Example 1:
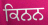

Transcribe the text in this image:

ਕਿਨਨ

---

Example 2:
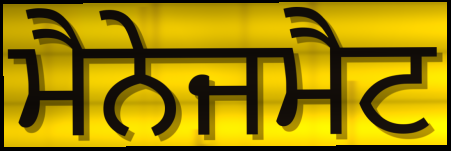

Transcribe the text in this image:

ਮੈਨੇਜਮੈਟ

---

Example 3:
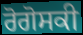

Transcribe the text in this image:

ਰੋਗੋਸਕੀ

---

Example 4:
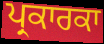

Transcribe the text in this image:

ਪ੍ਰਕਾਰਕਾ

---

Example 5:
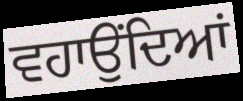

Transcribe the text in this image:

ਵਹਾਉਂਦਿਆਂ